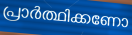
പ്രാർത്ഥിക്കണോ